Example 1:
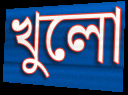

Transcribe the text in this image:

খুলো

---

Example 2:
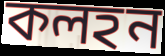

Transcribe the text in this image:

কলহন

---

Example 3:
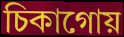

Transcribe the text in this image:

চিকাগোয়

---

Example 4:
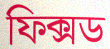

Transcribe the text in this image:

ফিক্সড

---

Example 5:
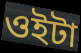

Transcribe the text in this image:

ওইটা